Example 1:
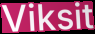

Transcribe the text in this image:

Viksit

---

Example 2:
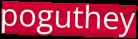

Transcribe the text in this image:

poguthey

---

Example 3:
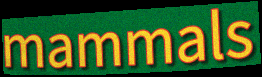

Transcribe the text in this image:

mammals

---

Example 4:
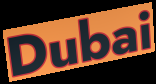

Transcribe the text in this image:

Dubai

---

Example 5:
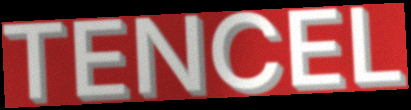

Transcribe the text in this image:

TENCEL